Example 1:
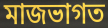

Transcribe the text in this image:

মাজভাগত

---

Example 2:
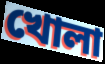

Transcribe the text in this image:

খোলা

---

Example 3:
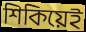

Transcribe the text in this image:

শিকিয়েই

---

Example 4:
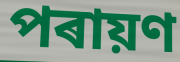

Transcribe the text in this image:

পৰায়ণ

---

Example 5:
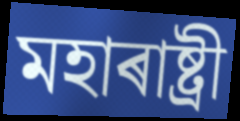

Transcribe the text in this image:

মহাৰাষ্ট্ৰী